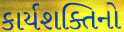
કાર્યશક્તિનો